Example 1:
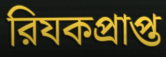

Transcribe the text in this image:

রিযকপ্রাপ্ত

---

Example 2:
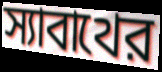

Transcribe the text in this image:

স্যাবাথের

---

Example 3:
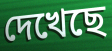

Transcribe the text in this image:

দেখেছে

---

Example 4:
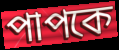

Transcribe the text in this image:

পাপকে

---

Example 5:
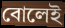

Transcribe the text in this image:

বোলেই